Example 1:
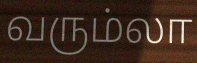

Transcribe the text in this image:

வரும்லா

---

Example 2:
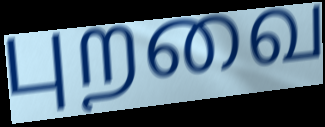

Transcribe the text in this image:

புறவை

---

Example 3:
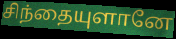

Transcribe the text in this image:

சிந்தையுளானே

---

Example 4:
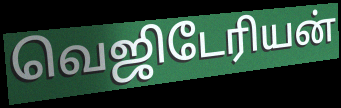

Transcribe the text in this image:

வெஜிடேரியன்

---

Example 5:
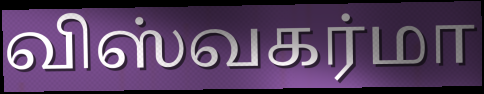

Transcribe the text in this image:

விஸ்வகர்மா